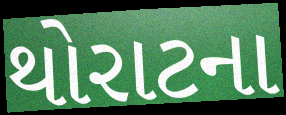
થોરાટના